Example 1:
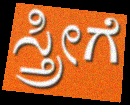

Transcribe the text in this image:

ಸ್ತ್ರೀಗೆ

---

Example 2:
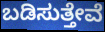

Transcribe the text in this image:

ಬಡಿಸುತ್ತೇವೆ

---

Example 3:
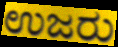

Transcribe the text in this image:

ಉಜರು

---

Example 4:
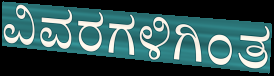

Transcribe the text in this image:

ವಿವರಗಳಿಗಿಂತ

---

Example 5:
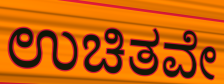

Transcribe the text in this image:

ಉಚಿತವೇ